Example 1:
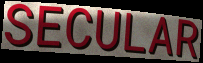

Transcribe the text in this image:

SECULAR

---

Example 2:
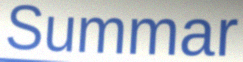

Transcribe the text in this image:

Summar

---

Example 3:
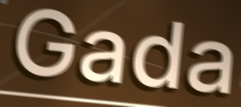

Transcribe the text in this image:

Gada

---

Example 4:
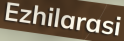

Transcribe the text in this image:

Ezhilarasi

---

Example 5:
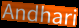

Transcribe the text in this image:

Andhari